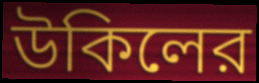
উকিলের